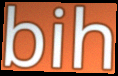
bih